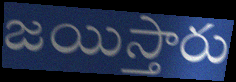
జయిస్తారు